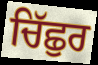
ਚਿੱਛੁਰ